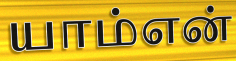
யாம்என்